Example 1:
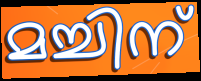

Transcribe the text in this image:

മച്ചിന്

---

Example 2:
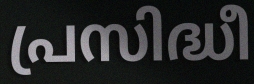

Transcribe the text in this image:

പ്രസിദ്ധീ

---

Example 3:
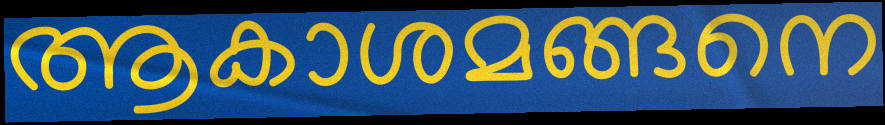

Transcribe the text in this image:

ആകാശമങ്ങനെ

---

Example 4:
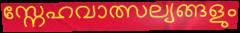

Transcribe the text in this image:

സ്നേഹവാത്സല്യങ്ങളും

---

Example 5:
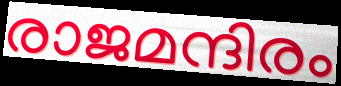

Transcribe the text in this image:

രാജമന്ദിരം